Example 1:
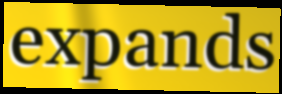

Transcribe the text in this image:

expands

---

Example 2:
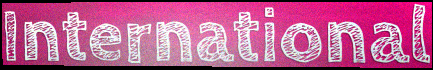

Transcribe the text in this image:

International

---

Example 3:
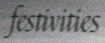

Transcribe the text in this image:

festivities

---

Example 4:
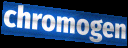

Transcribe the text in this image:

chromogen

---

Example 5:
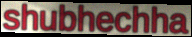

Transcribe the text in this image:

shubhechha